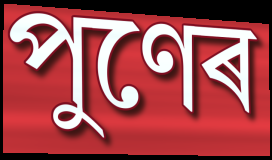
পুণেৰ